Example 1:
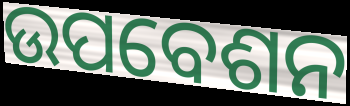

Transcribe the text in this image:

ଉପବେଶନ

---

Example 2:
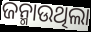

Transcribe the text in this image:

ଜନ୍ମାଉଥିଲା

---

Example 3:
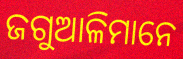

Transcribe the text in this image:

ଜଗୁଆଳିମାନେ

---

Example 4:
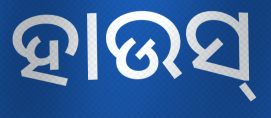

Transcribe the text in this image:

ହାଉସ୍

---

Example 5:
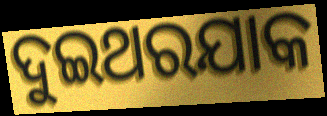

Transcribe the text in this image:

ଦୁଇଥରଯାକ